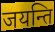
जयन्ति